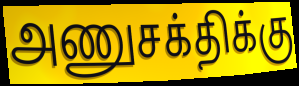
அணுசக்திக்கு